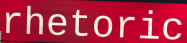
rhetoric